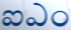
ఐఎం